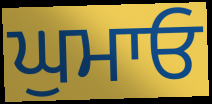
ਘੁਮਾਓ